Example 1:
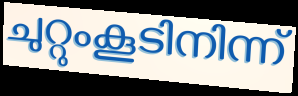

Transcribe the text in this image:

ചുറ്റുംകൂടിനിന്ന്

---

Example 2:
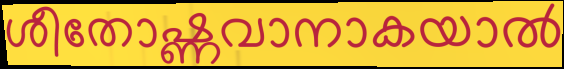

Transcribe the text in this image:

ശീതോഷ്ണവാനാകയാൽ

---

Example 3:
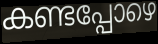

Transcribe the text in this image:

കണ്ടപ്പോഴെ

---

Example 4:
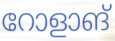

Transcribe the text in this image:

റോളാങ്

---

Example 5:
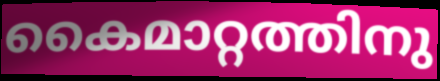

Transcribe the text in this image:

കൈമാറ്റത്തിനു